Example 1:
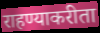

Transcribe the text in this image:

राहण्याकरीता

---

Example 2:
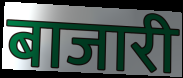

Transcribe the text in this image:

बाजारी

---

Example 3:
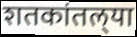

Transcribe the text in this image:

शतकांतल्या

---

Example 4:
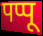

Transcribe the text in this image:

पप्पू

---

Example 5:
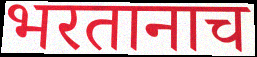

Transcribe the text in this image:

भरतानाच